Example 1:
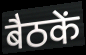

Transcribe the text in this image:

बैठकें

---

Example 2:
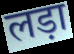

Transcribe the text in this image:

लड़ा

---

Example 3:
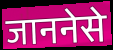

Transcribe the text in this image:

जाननेसे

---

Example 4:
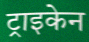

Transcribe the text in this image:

ट्राइकेन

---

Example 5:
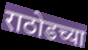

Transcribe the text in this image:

राठोडच्या